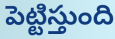
పెట్టిస్తుంది